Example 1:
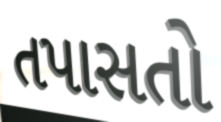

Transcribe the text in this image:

તપાસતો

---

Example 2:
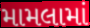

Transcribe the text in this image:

મામલામાં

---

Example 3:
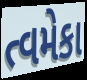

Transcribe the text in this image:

ત્વમેકા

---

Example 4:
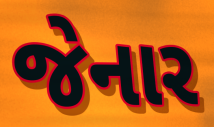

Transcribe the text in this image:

જેનાર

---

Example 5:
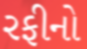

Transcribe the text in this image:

રફીનો